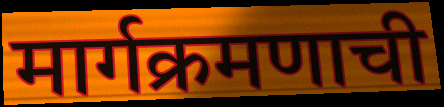
मार्गक्रमणाची